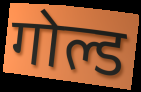
गोल्‍ड